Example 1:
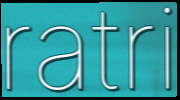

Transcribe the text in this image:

ratri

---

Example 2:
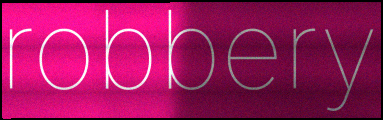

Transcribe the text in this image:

robbery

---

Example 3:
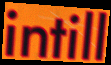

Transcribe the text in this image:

intill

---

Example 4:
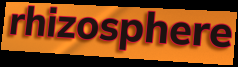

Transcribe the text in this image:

rhizosphere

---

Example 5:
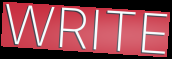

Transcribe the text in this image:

WRITE